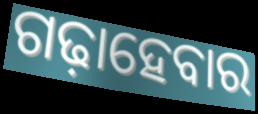
ଗଢ଼ାହେବାର